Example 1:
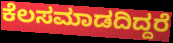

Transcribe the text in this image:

ಕೆಲಸಮಾಡದಿದ್ದರೆ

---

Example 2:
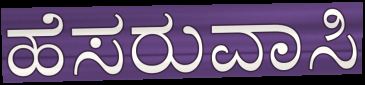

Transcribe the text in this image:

ಹೆಸರುವಾಸಿ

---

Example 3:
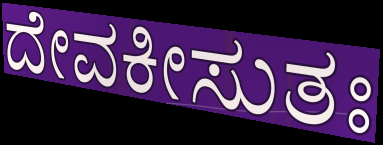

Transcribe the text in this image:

ದೇವಕೀಸುತಃ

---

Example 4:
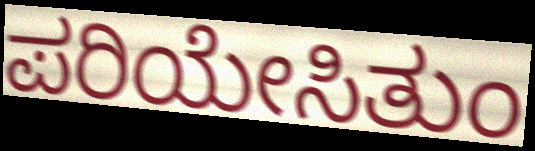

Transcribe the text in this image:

ಪರಿಯೇಸಿತುಂ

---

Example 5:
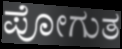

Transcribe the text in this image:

ಪೋಗುತ